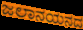
ಜಲಾನಯನದ